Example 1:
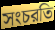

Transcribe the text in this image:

সংচরতি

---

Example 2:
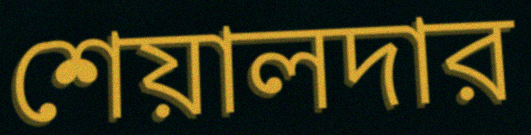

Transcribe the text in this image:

শেয়ালদার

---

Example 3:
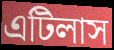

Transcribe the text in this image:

এটিলাস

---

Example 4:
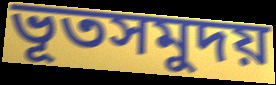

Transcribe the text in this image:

ভূতসমুদয়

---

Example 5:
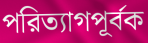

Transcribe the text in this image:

পরিত্যাগপূর্বক